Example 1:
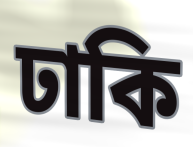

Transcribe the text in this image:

ঢাকি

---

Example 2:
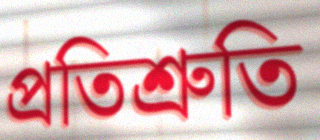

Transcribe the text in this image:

প্ৰতিশ্ৰুতি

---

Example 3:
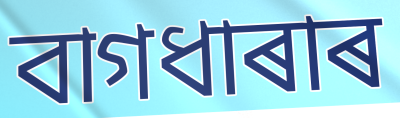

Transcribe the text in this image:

বাগধাৰাৰ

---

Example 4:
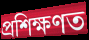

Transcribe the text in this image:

প্ৰশিক্ষণত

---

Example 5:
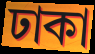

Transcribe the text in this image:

ঢাকা